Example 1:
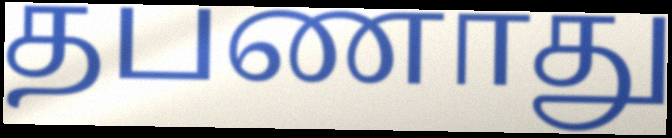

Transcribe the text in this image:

தபணாது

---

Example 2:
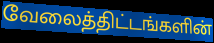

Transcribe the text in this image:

வேலைத்திட்டங்களின்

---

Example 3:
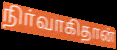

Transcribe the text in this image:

நிர்வாகிதான்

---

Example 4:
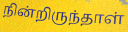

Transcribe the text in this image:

நின்றிருந்தாள்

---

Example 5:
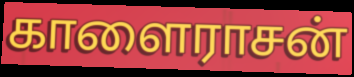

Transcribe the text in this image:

காளைராசன்